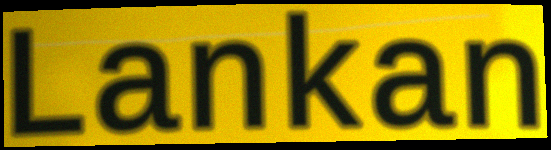
Lankan